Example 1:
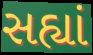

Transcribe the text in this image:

સહ્યાં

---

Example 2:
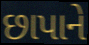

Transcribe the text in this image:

છાપાને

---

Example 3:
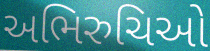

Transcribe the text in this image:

અભિરુચિઓ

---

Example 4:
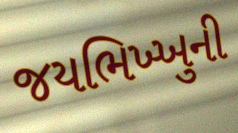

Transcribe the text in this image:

જયભિખ્ખુની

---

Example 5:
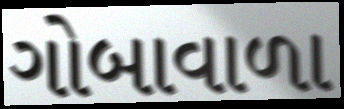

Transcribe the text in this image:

ગોબાવાળા